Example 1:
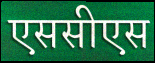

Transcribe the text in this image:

एससीएस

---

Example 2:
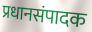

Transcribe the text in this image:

प्रधानसंपादक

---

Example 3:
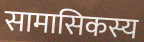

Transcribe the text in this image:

सामासिकस्य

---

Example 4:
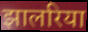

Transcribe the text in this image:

झालरिया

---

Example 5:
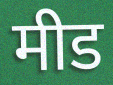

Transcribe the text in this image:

मीड